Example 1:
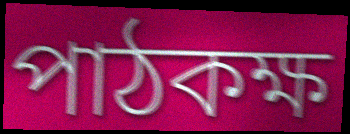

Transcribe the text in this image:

পাঠকক্ষ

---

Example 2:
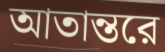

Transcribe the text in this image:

আতান্তরে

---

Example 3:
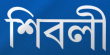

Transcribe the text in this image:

শিবলী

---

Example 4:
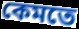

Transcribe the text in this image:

কেমতে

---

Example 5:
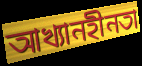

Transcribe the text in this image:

আখ্যানহীনতা